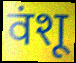
वंशू